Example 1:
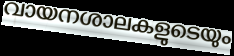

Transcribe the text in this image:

വായനശാലകളുടെയും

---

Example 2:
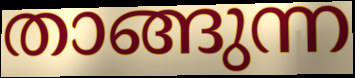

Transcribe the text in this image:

താങ്ങുന്ന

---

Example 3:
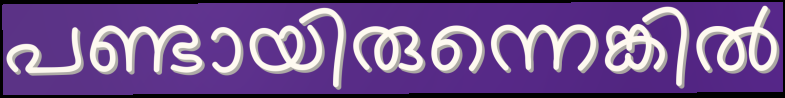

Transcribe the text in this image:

പണ്ടായിരുന്നെങ്കിൽ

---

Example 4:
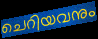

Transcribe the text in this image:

ചെറിയവനും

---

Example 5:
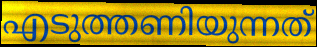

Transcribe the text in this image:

എടുത്തണിയുന്നത്